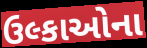
ઉલ્કાઓના